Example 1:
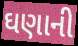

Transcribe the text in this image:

ઘણાની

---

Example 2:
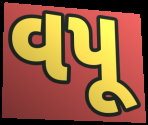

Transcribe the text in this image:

વપૂ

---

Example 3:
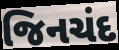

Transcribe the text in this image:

જિનચંદ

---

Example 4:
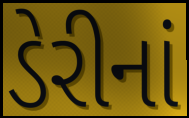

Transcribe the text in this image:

ડેરીનાં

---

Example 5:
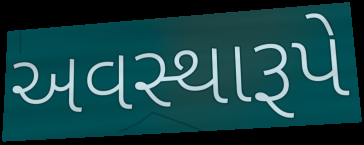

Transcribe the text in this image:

અવસ્થારૂપે